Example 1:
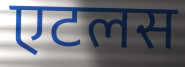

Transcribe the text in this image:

एटलस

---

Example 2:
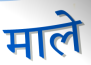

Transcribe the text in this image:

माले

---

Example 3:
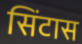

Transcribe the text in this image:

सिंटास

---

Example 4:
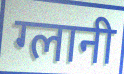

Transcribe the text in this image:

ग्लानी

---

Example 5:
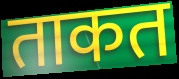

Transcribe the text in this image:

ताकत